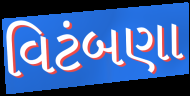
વિટંબણા